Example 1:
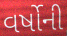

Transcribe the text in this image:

વર્ષોની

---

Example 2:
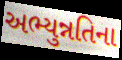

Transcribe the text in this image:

અભ્યુન્નતિના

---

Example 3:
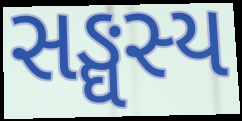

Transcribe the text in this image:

સઙ્ઘસ્ય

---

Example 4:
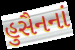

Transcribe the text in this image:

હુસૈનનાં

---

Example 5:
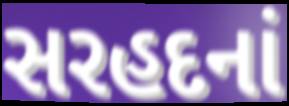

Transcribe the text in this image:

સરહદનાં